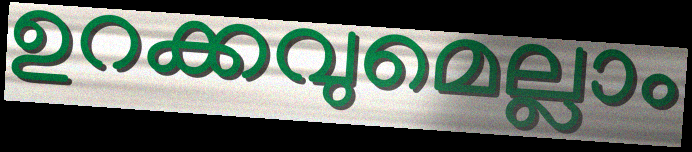
ഉറക്കവുമെല്ലാം